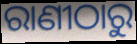
ରାଣୀଠାରୁ